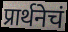
प्रार्थनेचं